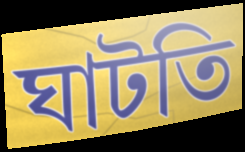
ঘাটতি